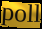
poll